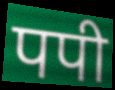
पपी